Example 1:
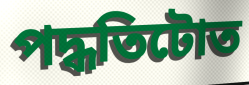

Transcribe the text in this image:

পদ্ধতিটোত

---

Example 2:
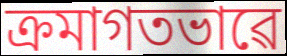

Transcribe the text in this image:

ক্ৰমাগতভাৱে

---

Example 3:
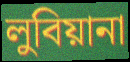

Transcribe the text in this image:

লুবিয়ানা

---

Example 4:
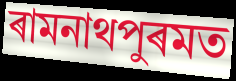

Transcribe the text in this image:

ৰামনাথপুৰমত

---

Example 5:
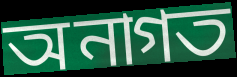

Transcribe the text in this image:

অনাগত